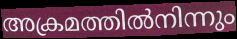
അക്രമത്തിൽനിന്നും